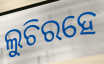
ଲୁଚିରହେ